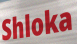
Shloka